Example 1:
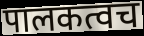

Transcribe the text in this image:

पालकत्वच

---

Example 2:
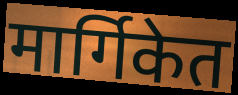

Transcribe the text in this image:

मार्गिकेत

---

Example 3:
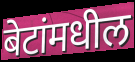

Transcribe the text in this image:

बेटांमधील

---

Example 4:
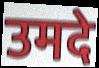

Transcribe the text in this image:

उमदे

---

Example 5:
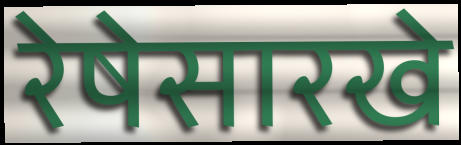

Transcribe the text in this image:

रेषेसारखे